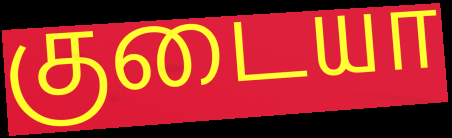
குடையா